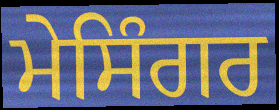
ਮੇਸਿੰਗਰ